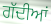
ਗੱਦੀਆਂ